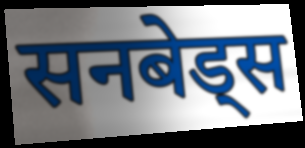
सनबेड्स